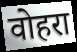
वोहरा